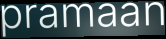
pramaan